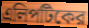
এলিপটিকের